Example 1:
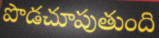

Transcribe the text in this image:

పొడచూపుతుంది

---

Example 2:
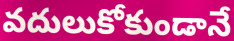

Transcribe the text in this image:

వదులుకోకుండానే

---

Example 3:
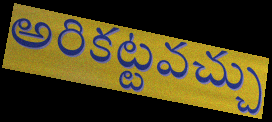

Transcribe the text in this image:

అరికట్టవచ్చు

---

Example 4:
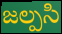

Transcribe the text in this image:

జల్పసి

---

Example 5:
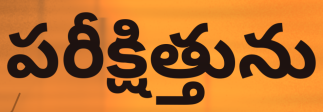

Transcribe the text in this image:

పరీక్షిత్తును